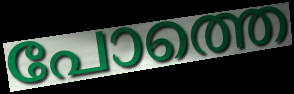
പോത്തെ